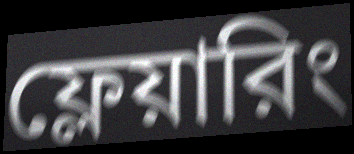
ফ্লেয়ারিং